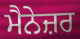
ਮੈਨੇਜ਼ਰ